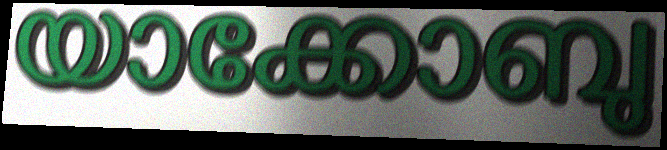
യാക്കോബു